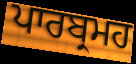
ਪਾਰਬ੍ਰਮਹ